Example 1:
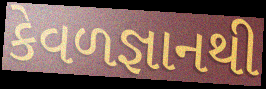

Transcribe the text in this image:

કેવળજ્ઞાનથી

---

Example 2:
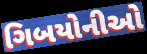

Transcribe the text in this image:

ગિબયોનીઓ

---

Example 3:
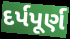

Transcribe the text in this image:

દર્પપૂર્ણ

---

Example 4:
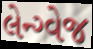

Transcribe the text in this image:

લેન્ગ્વેજ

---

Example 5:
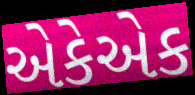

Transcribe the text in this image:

એકેએક